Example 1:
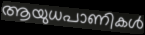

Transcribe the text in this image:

ആയുധപാണികൾ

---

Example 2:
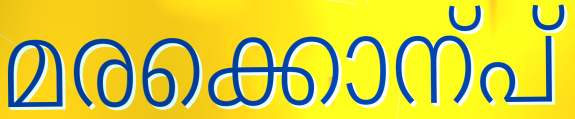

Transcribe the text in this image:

മരക്കൊന്പ്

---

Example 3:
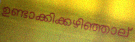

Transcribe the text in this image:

ഉണ്ടാക്കിക്കഴിഞ്ഞാല്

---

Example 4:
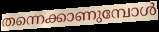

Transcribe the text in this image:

തന്നെക്കാണുമ്പോൾ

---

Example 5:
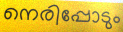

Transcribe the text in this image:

നെരിപ്പോടും